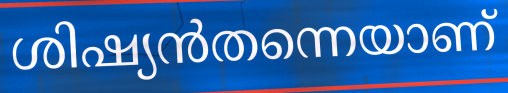
ശിഷ്യൻതന്നെയാണ്